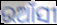
ଉଆଁସୀ